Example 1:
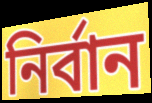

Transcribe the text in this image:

নির্বান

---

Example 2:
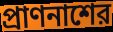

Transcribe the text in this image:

প্রাণনাশের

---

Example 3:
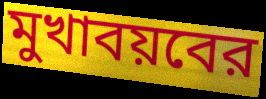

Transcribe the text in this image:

মুখাবয়বের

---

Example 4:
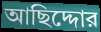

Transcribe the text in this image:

আছিদ্দোর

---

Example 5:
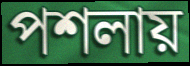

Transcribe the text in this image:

পশলায়